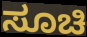
ಸೂಚಿ